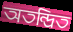
অতন্দ্রিত